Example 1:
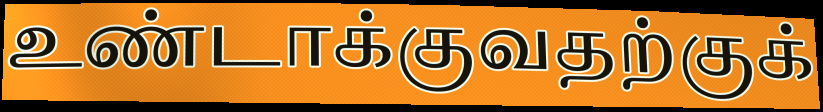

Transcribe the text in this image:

உண்டாக்குவதற்குக்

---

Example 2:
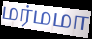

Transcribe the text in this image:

மர்மமா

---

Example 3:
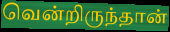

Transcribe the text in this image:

வென்றிருந்தான்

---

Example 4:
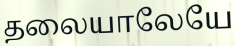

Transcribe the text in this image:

தலையாலேயே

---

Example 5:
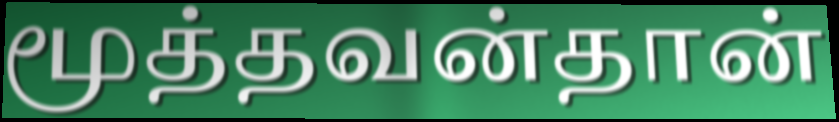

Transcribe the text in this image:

மூத்தவன்தான்